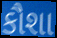
કૌશા